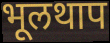
भूलथाप